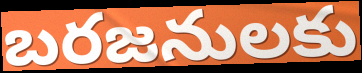
బరజనులకు